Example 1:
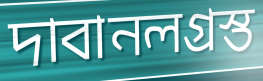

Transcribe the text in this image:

দাবানলগ্রস্ত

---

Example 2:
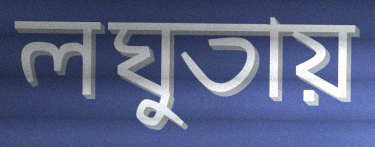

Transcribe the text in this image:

লঘুতায়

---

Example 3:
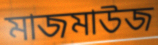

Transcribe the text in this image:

মাজমাউজ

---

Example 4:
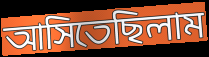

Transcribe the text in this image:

আসিতেছিলাম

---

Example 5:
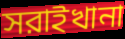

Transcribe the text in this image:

সরাইখানা